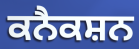
ਕਨੈਕਸ਼ਨ